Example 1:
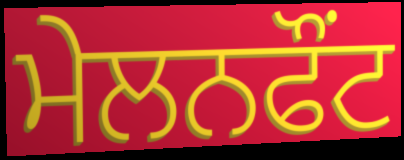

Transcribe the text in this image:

ਮੇਲਨਫੌਂਟ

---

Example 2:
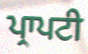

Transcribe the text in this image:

ਪ੍ਰਾਪਟੀ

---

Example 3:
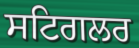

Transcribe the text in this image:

ਸਟਿਗਲਰ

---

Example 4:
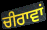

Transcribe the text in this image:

ਚੀਰਾਵਾਂ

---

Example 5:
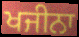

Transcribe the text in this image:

ਖਜੀਨਾ